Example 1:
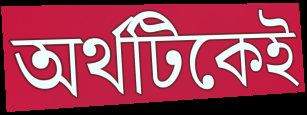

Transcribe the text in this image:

অর্থটিকেই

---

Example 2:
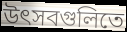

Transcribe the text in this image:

উৎসবগুলিতে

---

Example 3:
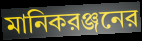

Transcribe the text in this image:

মানিকরঞ্জনের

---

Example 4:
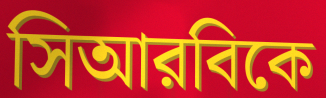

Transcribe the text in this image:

সিআরবিকে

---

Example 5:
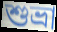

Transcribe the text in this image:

শুভ্রা